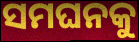
ସମଘନକୁ